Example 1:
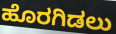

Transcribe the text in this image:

ಹೊರಗಿಡಲು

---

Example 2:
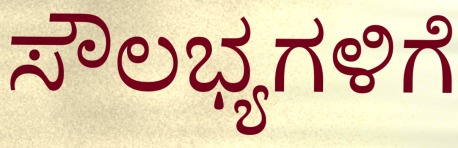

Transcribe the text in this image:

ಸೌಲಭ್ಯಗಳಿಗೆ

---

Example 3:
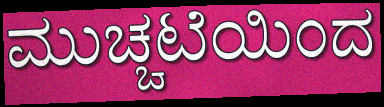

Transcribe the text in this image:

ಮುಚ್ಚಟೆಯಿಂದ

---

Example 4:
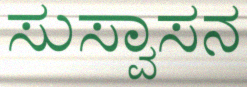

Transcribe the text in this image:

ಸುಸ್ವಾಸನ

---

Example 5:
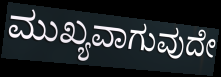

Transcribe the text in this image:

ಮುಖ್ಯವಾಗುವುದೇ